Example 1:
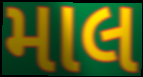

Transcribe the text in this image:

માલ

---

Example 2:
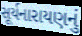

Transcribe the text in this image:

સૂર્યનારાયણનું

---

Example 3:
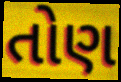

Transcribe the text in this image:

તોણ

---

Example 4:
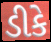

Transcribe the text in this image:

ડીકે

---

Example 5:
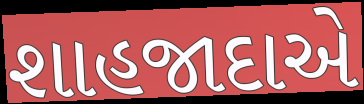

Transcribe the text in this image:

શાહજાદાએ